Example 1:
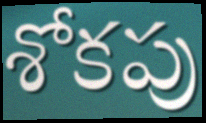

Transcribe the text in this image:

శోకపు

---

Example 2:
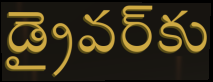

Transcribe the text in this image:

డ్రైవర్‌కు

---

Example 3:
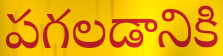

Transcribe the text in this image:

పగలడానికి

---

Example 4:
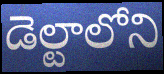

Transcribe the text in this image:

డెల్టాలోని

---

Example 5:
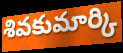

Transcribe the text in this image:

శివకుమార్కి